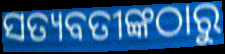
ସତ୍ୟବତୀଙ୍କଠାରୁ